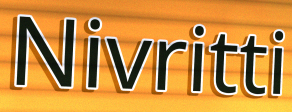
Nivritti